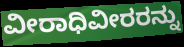
ವೀರಾಧಿವೀರರನ್ನು